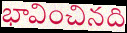
భావించినది